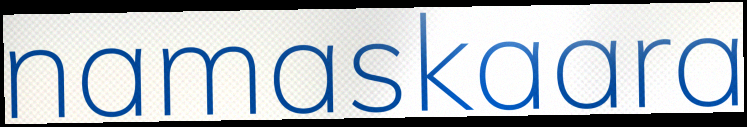
namaskaara